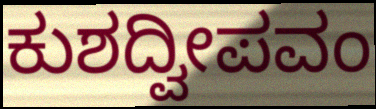
ಕುಶದ್ವೀಪವಂ